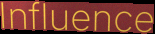
Influence